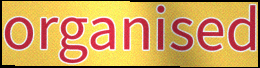
organised